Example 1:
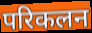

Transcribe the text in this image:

परिकलन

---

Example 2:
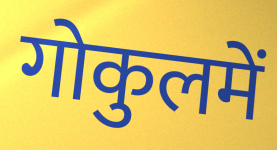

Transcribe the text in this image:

गोकुलमें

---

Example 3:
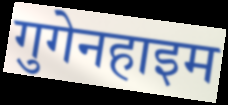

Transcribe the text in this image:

गुगेनहाइम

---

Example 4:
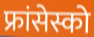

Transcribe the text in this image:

फ्रांसेस्को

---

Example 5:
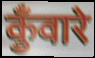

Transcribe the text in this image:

कुँवारे